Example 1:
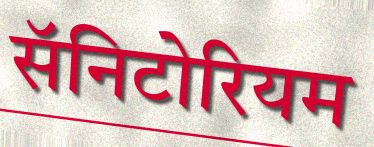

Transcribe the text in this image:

सॅनिटोरियम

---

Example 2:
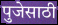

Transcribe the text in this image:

पुजेसाठी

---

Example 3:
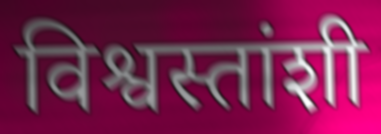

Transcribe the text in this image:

विश्वस्तांशी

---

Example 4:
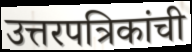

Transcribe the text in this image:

उत्तरपत्रिकांची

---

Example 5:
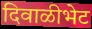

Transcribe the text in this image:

दिवाळीभेट